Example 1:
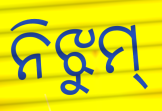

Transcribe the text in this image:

ନିଝୁମ୍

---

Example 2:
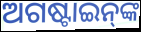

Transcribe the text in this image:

ଅଗଷ୍ଟାଇନ୍‌ଙ୍କ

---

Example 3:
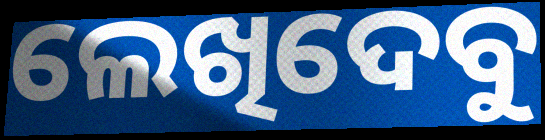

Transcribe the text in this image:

ଲେଖିଦେବୁ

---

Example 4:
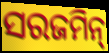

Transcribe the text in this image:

ସରଜମିନ୍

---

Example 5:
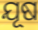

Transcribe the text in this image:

ଯୂଷ